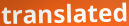
translated